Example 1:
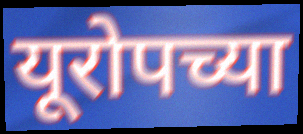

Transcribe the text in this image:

यूरोपच्या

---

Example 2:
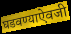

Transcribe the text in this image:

घडवण्याऐवजी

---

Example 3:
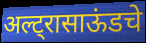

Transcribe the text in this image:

अल्ट्रासाऊंडचे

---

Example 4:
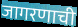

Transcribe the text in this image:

जागरणाची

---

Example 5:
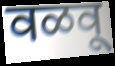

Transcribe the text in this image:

वळवू